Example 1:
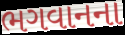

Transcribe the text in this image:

ભગવાનના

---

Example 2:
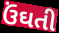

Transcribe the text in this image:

ઉંઘતી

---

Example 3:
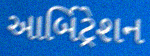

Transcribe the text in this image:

આર્બિટ્રેશન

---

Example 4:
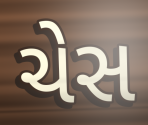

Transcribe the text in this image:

ચેસ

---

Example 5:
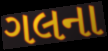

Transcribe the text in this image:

ગલના